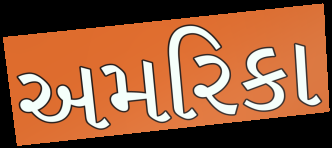
અમરિકા